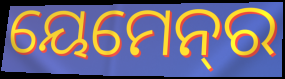
ୟେମେନ୍‌ର